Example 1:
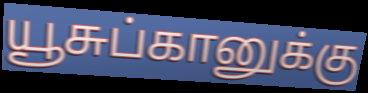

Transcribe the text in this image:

யூசுப்கானுக்கு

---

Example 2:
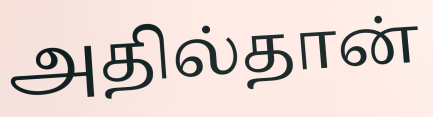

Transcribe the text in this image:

அதில்தான்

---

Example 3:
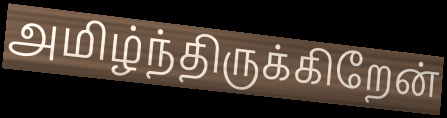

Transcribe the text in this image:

அமிழ்ந்திருக்கிறேன்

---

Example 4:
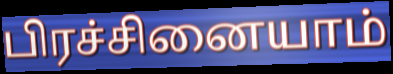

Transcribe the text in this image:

பிரச்சினையாம்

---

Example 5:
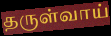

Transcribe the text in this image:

தருள்வாய்